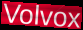
Volvox